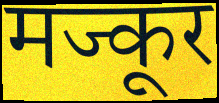
मज्कूर